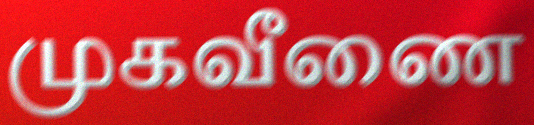
முகவீணை